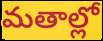
మతాల్లో